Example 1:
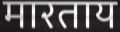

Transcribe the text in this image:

मारताय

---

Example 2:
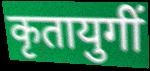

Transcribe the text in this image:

कृतायुगीं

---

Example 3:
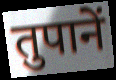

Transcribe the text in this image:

तुपानें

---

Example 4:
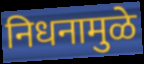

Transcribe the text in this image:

निधनामुळे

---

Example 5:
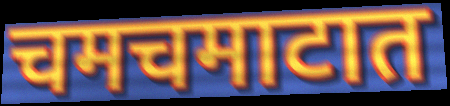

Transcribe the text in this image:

चमचमाटात